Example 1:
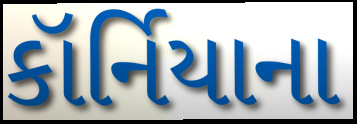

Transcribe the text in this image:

કૉર્નિયાના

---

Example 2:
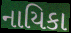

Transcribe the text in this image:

નાયિકા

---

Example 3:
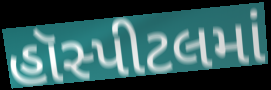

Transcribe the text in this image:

હૉસ્પીટલમાં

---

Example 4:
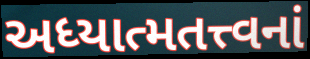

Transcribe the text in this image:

અધ્યાત્મતત્ત્વનાં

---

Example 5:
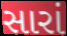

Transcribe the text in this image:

સારાં